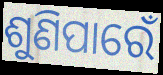
ଶୁଣିପାରେଁ